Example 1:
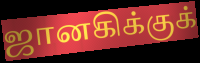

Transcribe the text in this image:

ஜானகிக்குக்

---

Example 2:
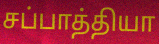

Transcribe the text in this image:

சப்பாத்தியா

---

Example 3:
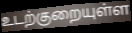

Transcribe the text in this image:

உடற்குறையுள்ள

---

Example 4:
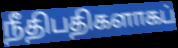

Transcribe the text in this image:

நீதிபதிகளாகப்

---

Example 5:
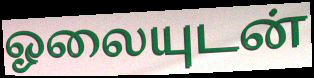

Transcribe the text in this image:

ஓலையுடன்